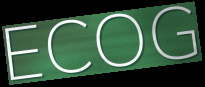
ECOG